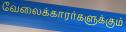
வேலைக்காரர்களுக்கும்